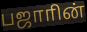
பஜாரின்